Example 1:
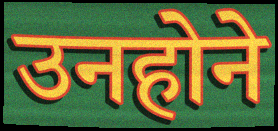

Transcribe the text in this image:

उनहोने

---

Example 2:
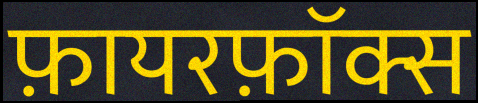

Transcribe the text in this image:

फ़ायरफ़ॉक्स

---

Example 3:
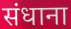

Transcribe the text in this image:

संधाना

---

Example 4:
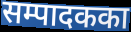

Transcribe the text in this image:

सम्पादकका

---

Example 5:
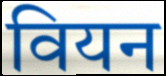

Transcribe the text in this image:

वियन